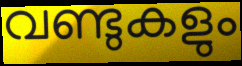
വണ്ടുകളും